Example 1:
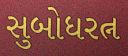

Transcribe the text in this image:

સુબોધરત્ન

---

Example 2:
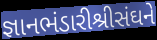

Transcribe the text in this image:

જ્ઞાનભંડારીશ્રીસંઘને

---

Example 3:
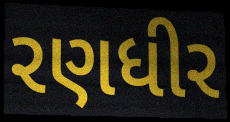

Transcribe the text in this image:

રણધીર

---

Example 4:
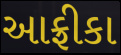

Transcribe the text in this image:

આફ્રીકા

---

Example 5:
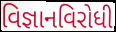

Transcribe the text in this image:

વિજ્ઞાનવિરોધી